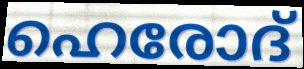
ഹെരോദ്